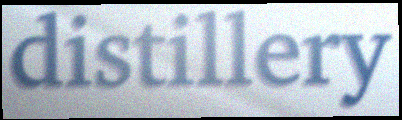
distillery